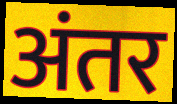
अंतर